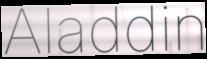
Aladdin